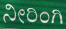
ನೀರಿಂಗಿ